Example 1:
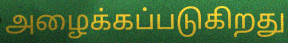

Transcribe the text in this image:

அழைக்கப்படுகிறது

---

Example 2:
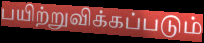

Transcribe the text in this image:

பயிற்றுவிக்கப்படும்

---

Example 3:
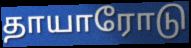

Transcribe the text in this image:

தாயாரோடு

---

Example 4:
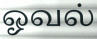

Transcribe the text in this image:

ஓவல்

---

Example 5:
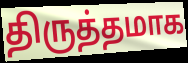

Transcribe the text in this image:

திருத்தமாக